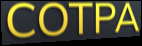
COTPA